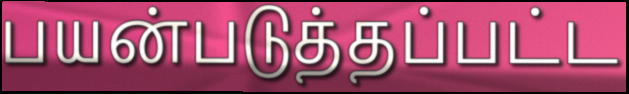
பயன்படுத்தப்பட்ட